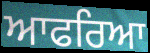
ਆਫਰਿਆ